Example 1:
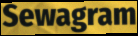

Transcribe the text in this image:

Sewagram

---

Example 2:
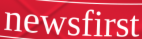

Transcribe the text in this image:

newsfirst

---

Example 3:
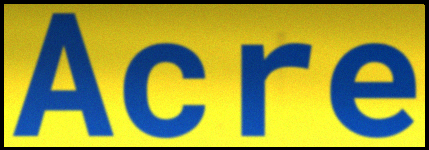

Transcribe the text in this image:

Acre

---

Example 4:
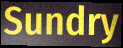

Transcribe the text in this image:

Sundry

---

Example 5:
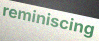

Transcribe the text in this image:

reminiscing